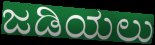
ಜಡಿಯಲು